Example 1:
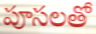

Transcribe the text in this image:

పూసలతో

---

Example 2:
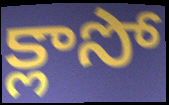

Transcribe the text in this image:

క్లాసో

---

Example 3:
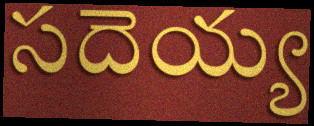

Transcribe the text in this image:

సదెయ్య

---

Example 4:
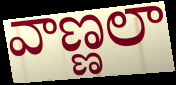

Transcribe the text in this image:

వాణ్ణలా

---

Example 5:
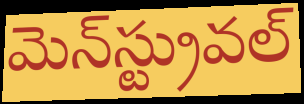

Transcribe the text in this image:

మెన్‌స్ట్రువల్